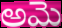
అమె